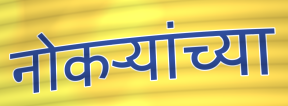
नोकऱ्यांच्या